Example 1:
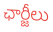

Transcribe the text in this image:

ఛార్జీలు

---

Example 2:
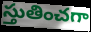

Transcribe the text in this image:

స్తుతించగా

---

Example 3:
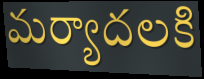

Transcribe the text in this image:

మర్యాదలకి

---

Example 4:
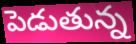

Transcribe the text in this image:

పెడుతున్న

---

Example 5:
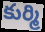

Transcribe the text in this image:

కుర్మి